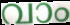
വാം